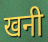
खनी